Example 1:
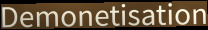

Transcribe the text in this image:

Demonetisation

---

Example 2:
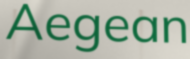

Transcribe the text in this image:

Aegean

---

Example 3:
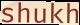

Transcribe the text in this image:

shukh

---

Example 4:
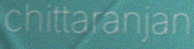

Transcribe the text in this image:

chittaranjan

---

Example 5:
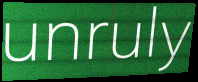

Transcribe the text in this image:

unruly